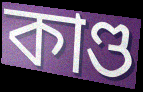
কাণ্ড